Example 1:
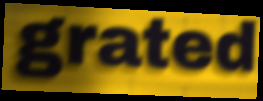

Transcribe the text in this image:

grated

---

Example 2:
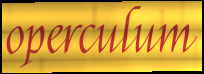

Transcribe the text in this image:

operculum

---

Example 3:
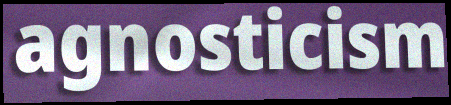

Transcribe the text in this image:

agnosticism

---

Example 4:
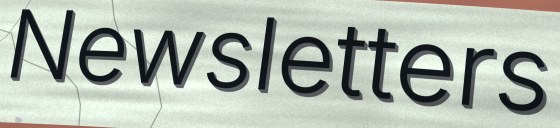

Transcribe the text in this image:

Newsletters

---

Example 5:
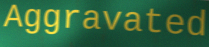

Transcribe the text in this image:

Aggravated